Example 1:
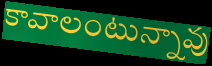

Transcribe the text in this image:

కావాలంటున్నావు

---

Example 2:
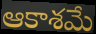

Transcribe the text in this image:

ఆకాశమే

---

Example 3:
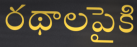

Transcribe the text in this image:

రథాలపైకి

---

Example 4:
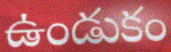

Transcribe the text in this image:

ఉండుకం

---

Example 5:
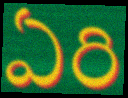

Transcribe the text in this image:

ఏరి